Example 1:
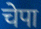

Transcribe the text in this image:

चेपा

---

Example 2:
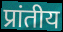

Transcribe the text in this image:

प्रांतीय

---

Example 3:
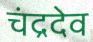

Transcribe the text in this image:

चंद्रदेव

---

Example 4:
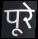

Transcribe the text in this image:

पूरे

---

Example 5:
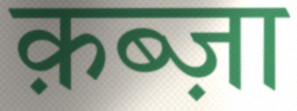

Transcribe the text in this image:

क़ब्ज़ा